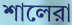
শালেরা